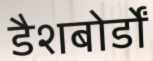
डैशबोर्डों